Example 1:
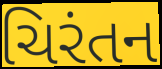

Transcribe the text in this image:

ચિરંતન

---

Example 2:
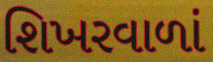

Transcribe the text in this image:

શિખરવાળાં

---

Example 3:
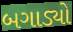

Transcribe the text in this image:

બગાડ્યો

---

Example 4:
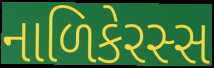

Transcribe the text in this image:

નાળિકેરસ્સ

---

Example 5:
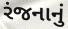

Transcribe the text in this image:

રંજનાનું